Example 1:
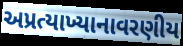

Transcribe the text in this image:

અપ્રત્યાખ્યાનાવરણીય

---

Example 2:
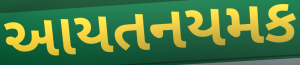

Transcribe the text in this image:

આયતનયમક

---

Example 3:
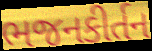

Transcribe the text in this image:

ભજનકીર્તન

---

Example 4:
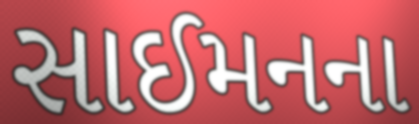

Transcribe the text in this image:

સાઈમનના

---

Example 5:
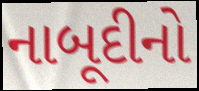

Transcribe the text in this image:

નાબૂદીનો